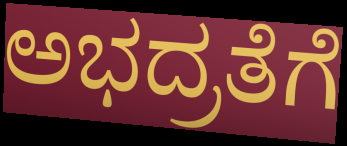
ಅಭದ್ರತೆಗೆ